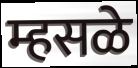
म्हसळे